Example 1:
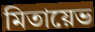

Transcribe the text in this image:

মিতায়েভ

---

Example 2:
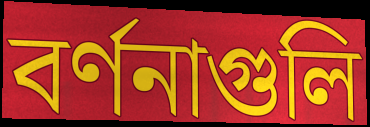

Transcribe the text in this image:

বর্ণনাগুলি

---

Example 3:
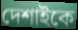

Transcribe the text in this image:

দেশাইকে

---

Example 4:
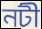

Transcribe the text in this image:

নটী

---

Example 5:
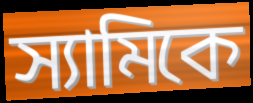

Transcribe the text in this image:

স্যামিকে